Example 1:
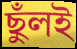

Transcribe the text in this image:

ছুঁলই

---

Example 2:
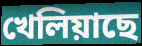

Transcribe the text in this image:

খেলিয়াছে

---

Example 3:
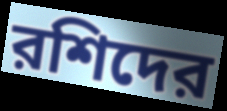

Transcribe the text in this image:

রশিদের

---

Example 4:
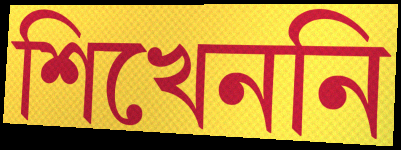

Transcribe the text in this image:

শিখেননি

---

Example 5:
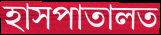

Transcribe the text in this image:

হাসপাতালত